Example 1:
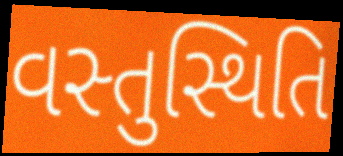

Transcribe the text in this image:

વસ્તુસ્થિતિ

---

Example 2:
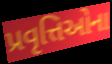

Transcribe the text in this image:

પ્રવૃત્તિઓના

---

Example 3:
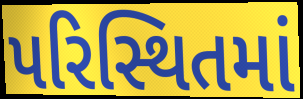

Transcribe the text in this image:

પરિસ્થિતમાં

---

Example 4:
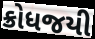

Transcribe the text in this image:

ક્રોધજયી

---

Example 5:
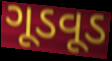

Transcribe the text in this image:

ગૂડવૂડ